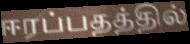
ஈரப்பதத்தில்